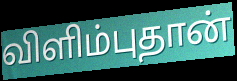
விளிம்புதான்